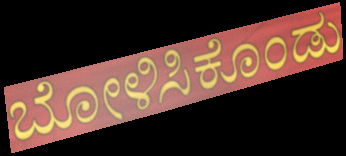
ಬೋಳಿಸಿಕೊಂಡು